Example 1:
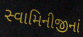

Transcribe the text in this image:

સ્વામિનીજીનાં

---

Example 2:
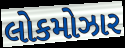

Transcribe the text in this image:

લોકમોઝાર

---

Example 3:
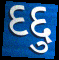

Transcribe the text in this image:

દદ્દુ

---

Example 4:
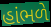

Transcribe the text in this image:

હાંભળે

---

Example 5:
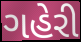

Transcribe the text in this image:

ગહેરી